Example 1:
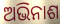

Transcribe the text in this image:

ଅଭିନାଶ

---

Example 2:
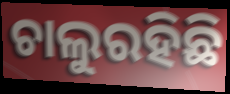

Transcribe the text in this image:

ଚାଲୁରହିଛି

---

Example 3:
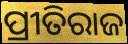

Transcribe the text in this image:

ପ୍ରୀତିରାଜ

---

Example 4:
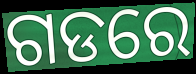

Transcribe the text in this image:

ଗଡରେ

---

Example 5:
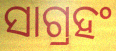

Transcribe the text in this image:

ସାଗ୍ରହଂ